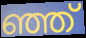
ഞ്ഞ്